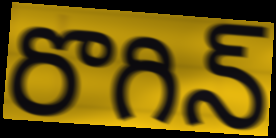
రొగిన్